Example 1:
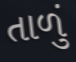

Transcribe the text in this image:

તાળું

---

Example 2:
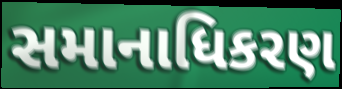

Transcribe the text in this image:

સમાનાધિકરણ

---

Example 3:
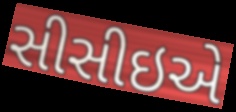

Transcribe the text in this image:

સીસીઇએ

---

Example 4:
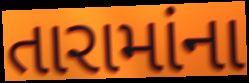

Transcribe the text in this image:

તારામાંના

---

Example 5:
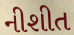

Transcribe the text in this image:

નીશીત